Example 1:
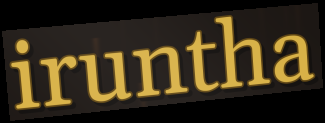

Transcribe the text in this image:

iruntha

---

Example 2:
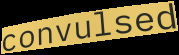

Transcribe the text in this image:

convulsed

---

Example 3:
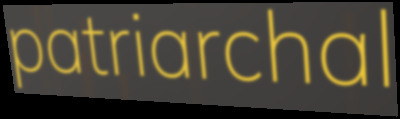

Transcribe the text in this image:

patriarchal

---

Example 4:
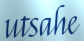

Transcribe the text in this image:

utsahe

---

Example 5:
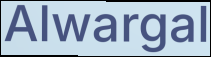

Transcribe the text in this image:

Alwargal